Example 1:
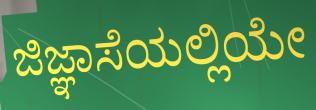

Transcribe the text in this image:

ಜಿಜ್ಞಾಸೆಯಲ್ಲಿಯೇ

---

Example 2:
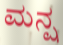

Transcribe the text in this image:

ಮನ್ಷ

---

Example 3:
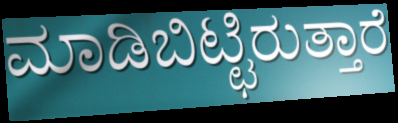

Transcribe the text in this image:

ಮಾಡಿಬಿಟ್ಟಿರುತ್ತಾರೆ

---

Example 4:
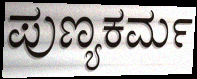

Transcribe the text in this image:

ಪುಣ್ಯಕರ್ಮ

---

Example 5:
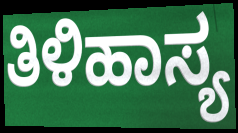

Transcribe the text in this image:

ತಿಳಿಹಾಸ್ಯ